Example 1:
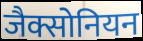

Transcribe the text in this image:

जैक्सोनियन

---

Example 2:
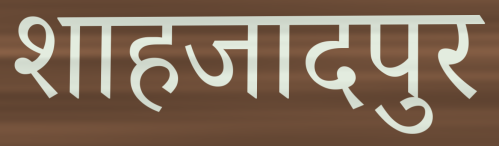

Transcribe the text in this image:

शाहजादपुर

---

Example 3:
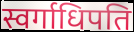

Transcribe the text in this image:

स्वर्गाधिपति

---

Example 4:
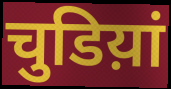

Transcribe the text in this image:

चुडिय़ां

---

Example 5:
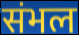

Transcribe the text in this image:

संभल